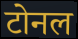
टोनल